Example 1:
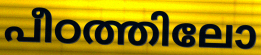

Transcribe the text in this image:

പീഠത്തിലോ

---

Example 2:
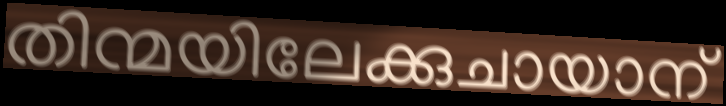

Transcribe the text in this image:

തിന്മയിലേക്കുചായാന്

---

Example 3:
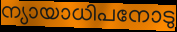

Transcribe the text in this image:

ന്യായാധിപനോടു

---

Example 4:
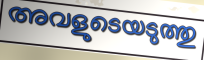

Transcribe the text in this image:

അവളുടെയടുത്തു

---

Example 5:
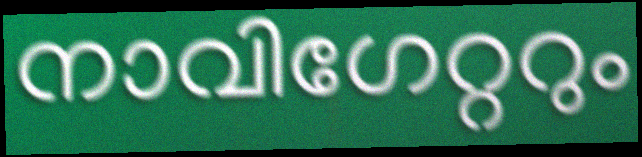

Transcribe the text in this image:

നാവിഗേറ്ററും